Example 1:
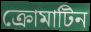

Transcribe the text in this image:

ক্রোমাটিন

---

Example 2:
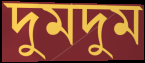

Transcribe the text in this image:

দুমদুম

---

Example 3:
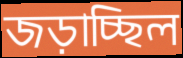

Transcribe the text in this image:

জড়াচ্ছিল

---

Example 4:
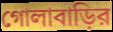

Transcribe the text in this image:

গোলাবাড়ির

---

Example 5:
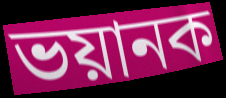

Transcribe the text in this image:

ভয়ানক